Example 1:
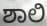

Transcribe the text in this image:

ಶಾಲಿ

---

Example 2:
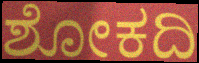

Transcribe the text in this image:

ಶೋಕದಿ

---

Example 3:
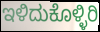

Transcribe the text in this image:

ಇಳಿದುಕೊಳ್ಳಿರಿ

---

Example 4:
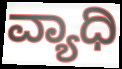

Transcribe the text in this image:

ವ್ಯಾಧಿ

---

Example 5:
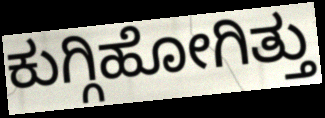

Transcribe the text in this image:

ಕುಗ್ಗಿಹೋಗಿತ್ತು